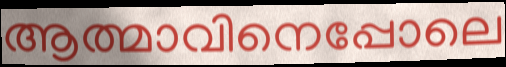
ആത്മാവിനെപ്പോലെ